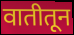
वातीतून